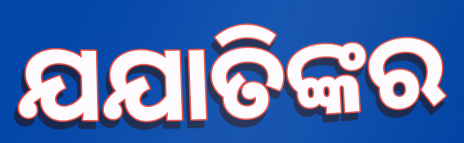
ଯଯାତିଙ୍କର